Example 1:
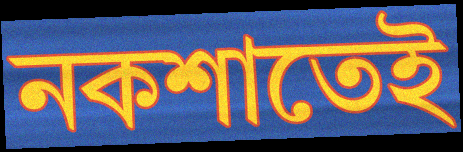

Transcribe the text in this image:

নকশাতেই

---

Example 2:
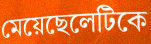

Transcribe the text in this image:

মেয়েছেলেটিকে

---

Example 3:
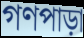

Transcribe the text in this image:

গণপাড়া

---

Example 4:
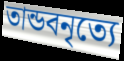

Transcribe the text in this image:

তান্ডবনৃত্যে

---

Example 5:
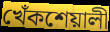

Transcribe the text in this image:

খেঁকশেয়ালী